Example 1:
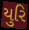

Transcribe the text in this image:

યુરિ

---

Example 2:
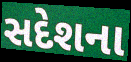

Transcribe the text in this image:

સદેશના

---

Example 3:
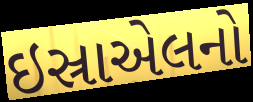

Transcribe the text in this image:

ઇસ્રાએલનો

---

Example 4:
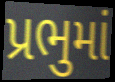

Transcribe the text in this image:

પ્રભુમાં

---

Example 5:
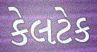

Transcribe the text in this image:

કેલટેક